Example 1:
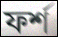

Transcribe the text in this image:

ফর্শ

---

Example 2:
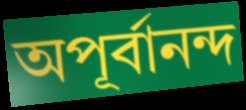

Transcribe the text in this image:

অপূর্বানন্দ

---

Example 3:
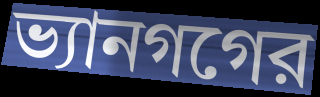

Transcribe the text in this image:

ভ্যানগগের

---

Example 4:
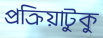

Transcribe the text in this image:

প্রক্রিয়াটুকু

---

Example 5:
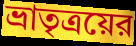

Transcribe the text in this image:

ভ্রাতৃত্রয়ের